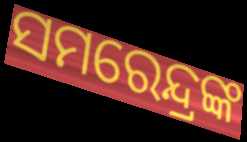
ସମରେନ୍ଦ୍ରଙ୍କ